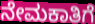
ನೇಮಕಾತಿಗೆ